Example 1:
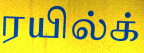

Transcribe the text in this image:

ரயில்க்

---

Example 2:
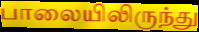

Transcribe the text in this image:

பாலையிலிருந்து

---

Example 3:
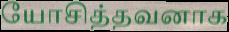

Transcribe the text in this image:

யோசித்தவனாக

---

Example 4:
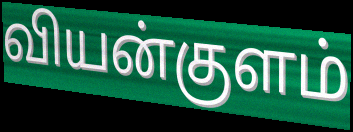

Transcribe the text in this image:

வியன்குளம்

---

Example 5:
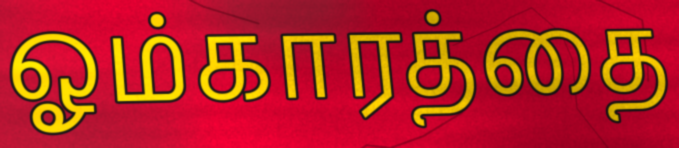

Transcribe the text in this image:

ஓம்காரத்தை